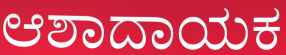
ಆಶಾದಾಯಕ